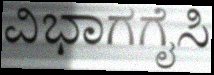
ವಿಭಾಗಗೈಸಿ